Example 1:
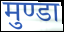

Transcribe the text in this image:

मुण्डा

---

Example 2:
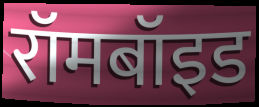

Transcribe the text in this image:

रॉमबॉइड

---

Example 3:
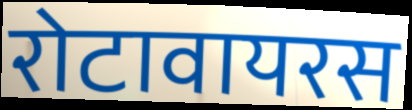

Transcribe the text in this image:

रोटावायरस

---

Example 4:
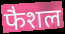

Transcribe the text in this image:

फैशल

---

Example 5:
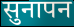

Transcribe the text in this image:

सुनापन